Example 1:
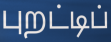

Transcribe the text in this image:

புறட்டிப்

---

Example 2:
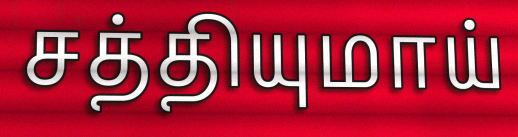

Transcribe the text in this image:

சத்தியுமாய்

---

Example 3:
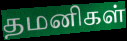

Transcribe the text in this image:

தமனிகள்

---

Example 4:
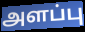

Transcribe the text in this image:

அளப்பு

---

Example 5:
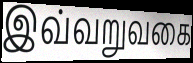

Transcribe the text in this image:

இவ்வறுவகை